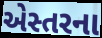
એસ્તરના